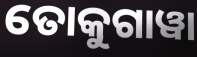
ତୋକୁଗାୱା